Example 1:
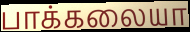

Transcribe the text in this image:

பாக்கலையா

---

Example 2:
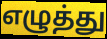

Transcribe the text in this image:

எழுத்து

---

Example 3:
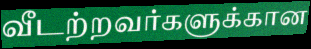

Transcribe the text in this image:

வீடற்றவர்களுக்கான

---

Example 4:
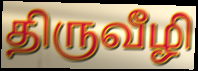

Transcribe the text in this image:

திருவீழி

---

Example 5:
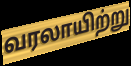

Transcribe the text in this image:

வரலாயிற்று